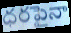
ధరపైనా